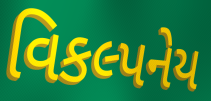
વિકલ્પનેય